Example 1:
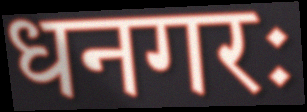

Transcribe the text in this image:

धनगरः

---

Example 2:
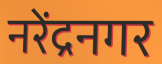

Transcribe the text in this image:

नरेंद्रनगर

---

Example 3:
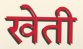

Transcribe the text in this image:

खेती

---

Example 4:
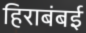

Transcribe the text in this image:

हिराबंबई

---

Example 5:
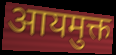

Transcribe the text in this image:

आयमुक्त